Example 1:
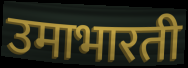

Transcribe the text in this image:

उमाभारती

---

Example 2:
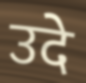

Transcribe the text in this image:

उदे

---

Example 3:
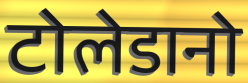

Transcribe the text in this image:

टोलेडानो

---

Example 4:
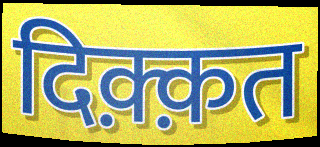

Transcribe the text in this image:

दिक़्क़त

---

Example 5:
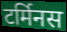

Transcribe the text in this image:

टर्मिनस